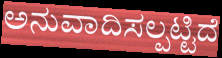
ಅನುವಾದಿಸಲ್ಪಟ್ಟಿದೆ